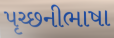
પૃચ્છનીભાષા